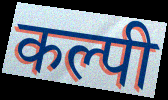
कल्पी